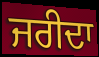
ਜਰੀਦਾ